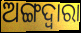
ଅଙ୍ଗଦ୍ଵାରା